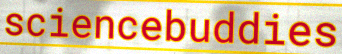
sciencebuddies